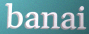
banai